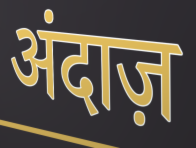
अंदाज़